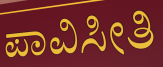
ಪಾವಿಸೀತಿ